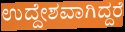
ಉದ್ದೇಶವಾಗಿದ್ದರೆ